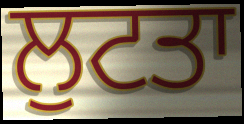
ਲੁਟਤਾ